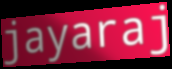
jayaraj